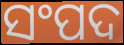
ସଂପଦ